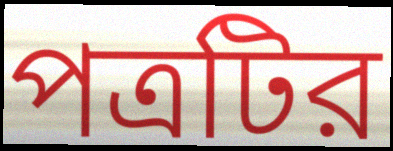
পত্রটির